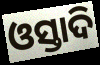
ଓସ୍ତାଦି